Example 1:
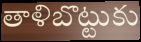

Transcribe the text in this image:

తాళిబొట్టుకు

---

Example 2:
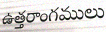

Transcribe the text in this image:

ఉత్తరాంగములు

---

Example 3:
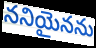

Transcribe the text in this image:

ననియైనను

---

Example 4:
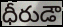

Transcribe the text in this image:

ధీరుడౌ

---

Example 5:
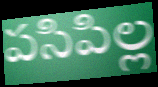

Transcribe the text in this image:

పసిపిల్ల